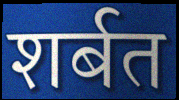
शर्बत